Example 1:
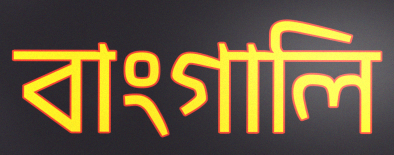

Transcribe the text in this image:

বাংগালি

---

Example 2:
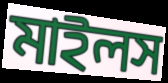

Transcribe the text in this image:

মাইলস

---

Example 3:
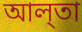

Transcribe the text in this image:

আল্‌তা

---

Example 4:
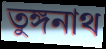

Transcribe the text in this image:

তুঙ্গনাথ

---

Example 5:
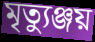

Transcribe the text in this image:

মৃত্যুঞ্জয়